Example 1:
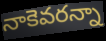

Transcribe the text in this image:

నాకెవరన్నా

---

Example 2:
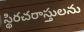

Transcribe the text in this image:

స్థిరచరాస్తులను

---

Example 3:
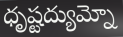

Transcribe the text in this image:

ధృష్టద్యుమ్నో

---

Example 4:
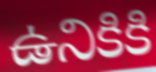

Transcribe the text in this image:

ఉనికికి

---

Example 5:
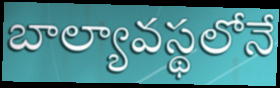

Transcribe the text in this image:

బాల్యావస్థలోనే